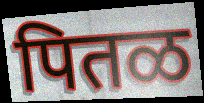
पितळ